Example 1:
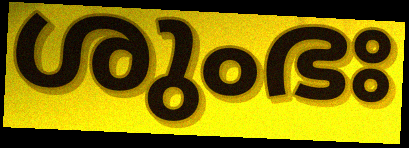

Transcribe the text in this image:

ശുംഭഃ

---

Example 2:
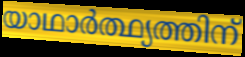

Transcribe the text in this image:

യാഥാർത്ഥ്യത്തിന്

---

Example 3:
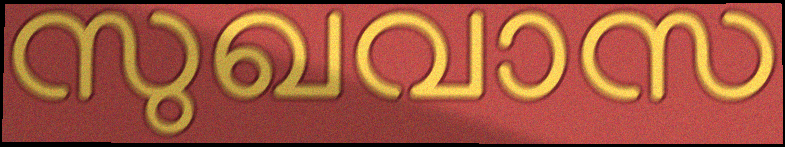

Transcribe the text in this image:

സുഖവാസ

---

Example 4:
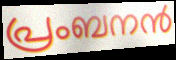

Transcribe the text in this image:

പ്രംബനൻ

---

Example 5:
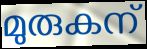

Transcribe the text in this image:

മുരുകന്